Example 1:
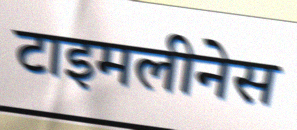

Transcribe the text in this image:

टाइमलीनेस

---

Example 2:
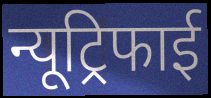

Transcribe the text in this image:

न्यूट्रिफाई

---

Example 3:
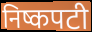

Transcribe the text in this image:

निष्कपटी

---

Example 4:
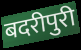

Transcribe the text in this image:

बदरीपुरी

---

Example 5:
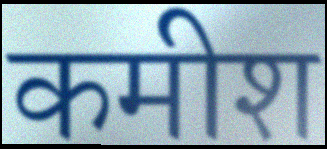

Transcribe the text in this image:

कमीश